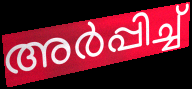
അർപ്പിച്ച്